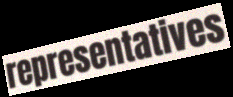
representatives